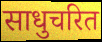
साधुचरित